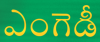
ఎంగెడీ